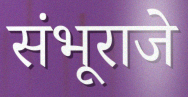
संभूराजे